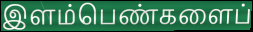
இளம்பெண்களைப்